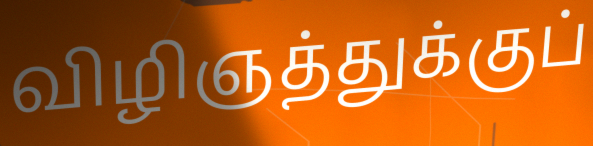
விழிஞத்துக்குப்